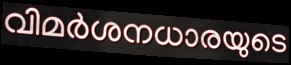
വിമർശനധാരയുടെ